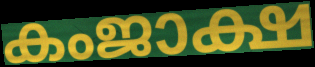
കംജാക്ഷ